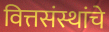
वित्तसंस्थांचे